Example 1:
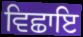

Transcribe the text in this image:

ਵਿਛਾਇ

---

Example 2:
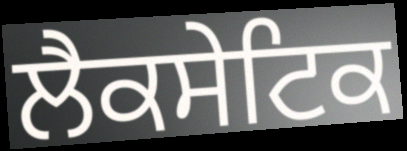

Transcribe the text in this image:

ਲੈਕਸੇਟਿਕ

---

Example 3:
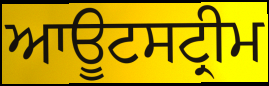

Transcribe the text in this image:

ਆਊਟਸਟ੍ਰੀਮ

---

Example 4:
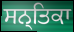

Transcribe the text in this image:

ਸਨ੍ਤਿਕਾ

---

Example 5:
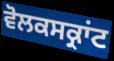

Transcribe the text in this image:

ਵੋਲਕਸਕ੍ਰਾਂਟ